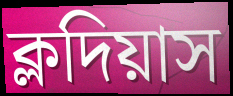
ক্লদিয়াস